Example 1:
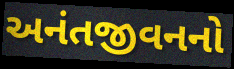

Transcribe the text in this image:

અનંતજીવનનો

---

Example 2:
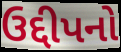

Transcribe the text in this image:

ઉદ્દીપનો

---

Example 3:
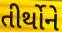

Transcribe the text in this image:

તીર્થોને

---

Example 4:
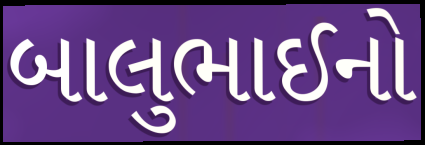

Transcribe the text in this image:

બાલુભાઈનો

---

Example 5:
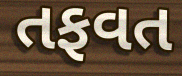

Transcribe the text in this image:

તફવત